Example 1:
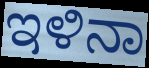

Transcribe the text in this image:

ಇಳಿನಾ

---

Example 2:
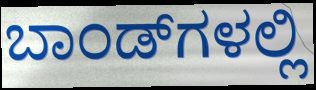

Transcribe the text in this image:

ಬಾಂಡ್‌ಗಳಲ್ಲಿ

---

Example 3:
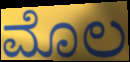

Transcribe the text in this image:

ಮೊಲ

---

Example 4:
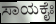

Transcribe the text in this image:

ಸಾಯಕೈಃ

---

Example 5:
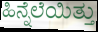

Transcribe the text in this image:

ಹಿನ್ನೆಲೆಯಿತ್ತು